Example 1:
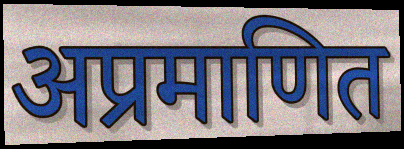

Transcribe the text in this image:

अप्रमाणित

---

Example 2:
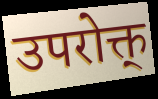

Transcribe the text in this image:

उपरोक्त्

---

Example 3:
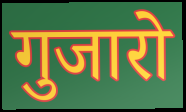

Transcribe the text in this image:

गुजारो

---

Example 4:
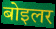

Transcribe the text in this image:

बोइलर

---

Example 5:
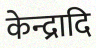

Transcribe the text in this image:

केन्द्रादि